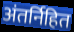
अंतर्निहित